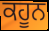
ਕਹੂਨ